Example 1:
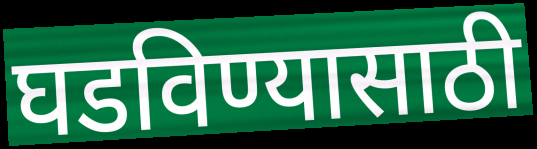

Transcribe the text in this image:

घडविण्यासाठी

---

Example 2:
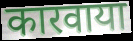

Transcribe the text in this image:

कारवाया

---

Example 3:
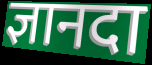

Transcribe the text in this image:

ज्ञानदा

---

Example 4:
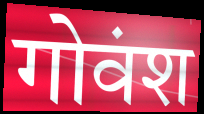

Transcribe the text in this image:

गोवंश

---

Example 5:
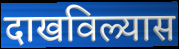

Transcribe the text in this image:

दाखविल्यास